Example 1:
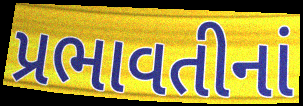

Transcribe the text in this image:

પ્રભાવતીનાં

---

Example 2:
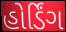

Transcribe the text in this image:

હોર્ડિંગ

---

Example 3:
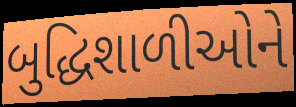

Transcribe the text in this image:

બુદ્ધિશાળીઓને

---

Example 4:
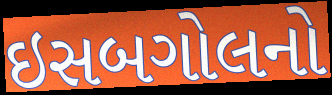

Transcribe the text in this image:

ઇસબગોલનો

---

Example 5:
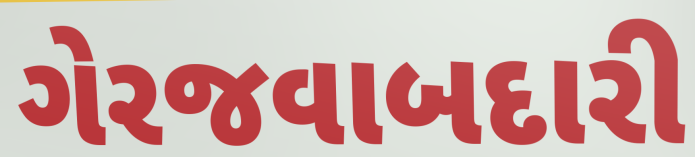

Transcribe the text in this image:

ગેરજવાબદારી